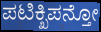
ಪಟಿಕ್ಖಿಪನ್ತೋ